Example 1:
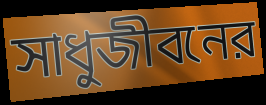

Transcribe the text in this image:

সাধুজীবনের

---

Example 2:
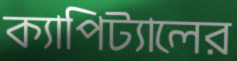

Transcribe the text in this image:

ক্যাপিট্যালের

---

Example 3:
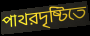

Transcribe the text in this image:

পাথরদৃষ্টিতে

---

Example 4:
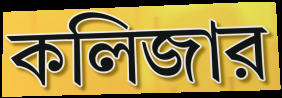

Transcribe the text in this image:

কলিজার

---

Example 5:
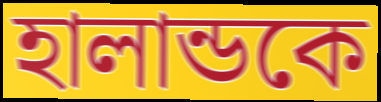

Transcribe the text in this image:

হালান্ডকে